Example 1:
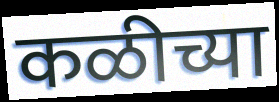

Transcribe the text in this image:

कळीच्या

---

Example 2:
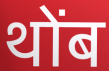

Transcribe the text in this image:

थोंब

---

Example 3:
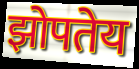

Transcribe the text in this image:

झोपतेय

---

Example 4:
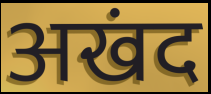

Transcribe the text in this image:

अखंद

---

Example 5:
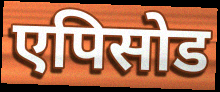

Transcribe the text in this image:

एपिसोड